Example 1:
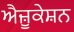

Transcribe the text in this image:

ਐਜ਼ੂਕੇਸ਼ਨ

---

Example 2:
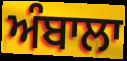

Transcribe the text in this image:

ਅੰਬਾਲਾ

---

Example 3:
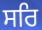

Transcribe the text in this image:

ਸਰਿ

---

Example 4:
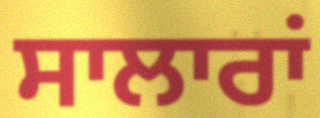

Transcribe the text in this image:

ਸਾਲਾਰਾਂ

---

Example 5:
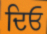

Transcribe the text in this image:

ਦਿਓ